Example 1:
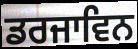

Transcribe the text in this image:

ਡਰਜਾਵਿਨ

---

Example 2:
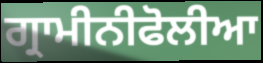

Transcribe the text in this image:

ਗ੍ਰਾਮੀਨੀਫੋਲੀਆ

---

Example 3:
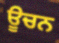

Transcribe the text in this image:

ਊਚਨ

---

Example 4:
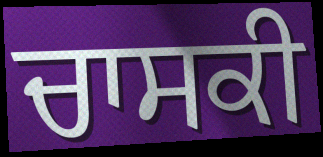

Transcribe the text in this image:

ਚਾਸਕੀ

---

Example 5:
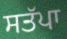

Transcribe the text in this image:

ਸਤੱਪਾ